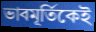
ভাবমূর্তিকেই